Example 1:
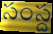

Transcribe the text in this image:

సంస్ద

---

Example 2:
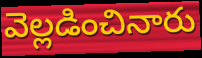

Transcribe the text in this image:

వెల్లడించినారు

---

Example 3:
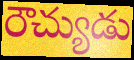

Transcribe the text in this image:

రౌచ్యుడు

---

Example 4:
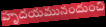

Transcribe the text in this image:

హృదయమునందుంచి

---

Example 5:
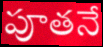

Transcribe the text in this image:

పూతనే